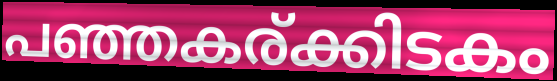
പഞ്ഞകര്ക്കിടകം